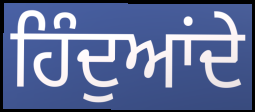
ਹਿੰਦੁਆਂਦੇ